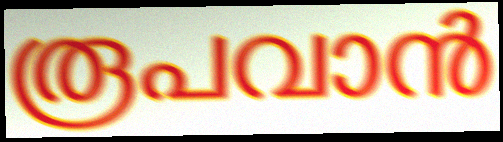
രൂപവാൻ